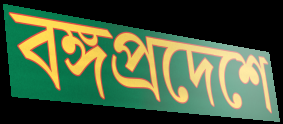
বঙ্গপ্রদেশে